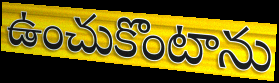
ఉంచుకొంటాను